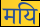
मयि